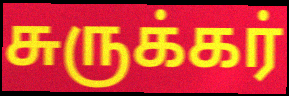
சுருக்கர்